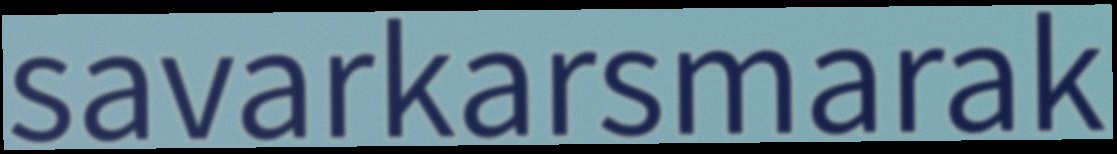
savarkarsmarak